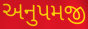
અનુપમજી